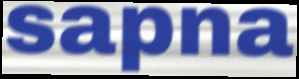
sapna